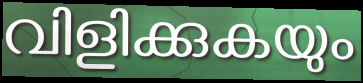
വിളിക്കുകയും